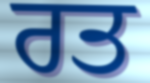
ਰਤ